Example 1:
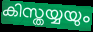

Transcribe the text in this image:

കിസ്തയ്യയും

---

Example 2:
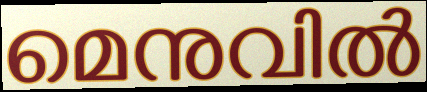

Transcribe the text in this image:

മെനുവിൽ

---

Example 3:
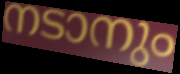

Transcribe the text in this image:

നടാനും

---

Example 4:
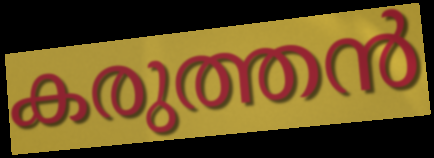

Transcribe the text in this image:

കരുത്തൻ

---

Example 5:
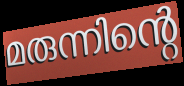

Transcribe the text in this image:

മരുന്നിന്റെ